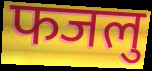
फजलु